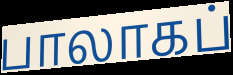
பாலாகப்